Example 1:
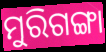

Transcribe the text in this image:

ମୁରିଗଙ୍ଗା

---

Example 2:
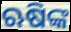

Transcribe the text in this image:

ଋଷିଙ୍କ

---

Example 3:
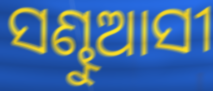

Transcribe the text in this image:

ସଣ୍ଢୁଆସୀ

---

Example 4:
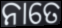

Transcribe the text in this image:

ନାତେ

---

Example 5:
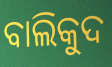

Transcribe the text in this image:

ବାଲିକୁଦ